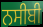
ਨਸੀਬੀ